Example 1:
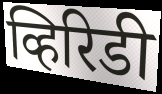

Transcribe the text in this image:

व्हिरिडी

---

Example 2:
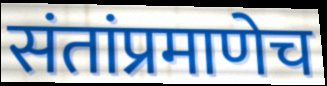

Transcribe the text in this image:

संतांप्रमाणेच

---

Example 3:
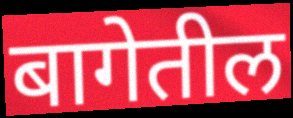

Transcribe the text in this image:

बागेतील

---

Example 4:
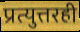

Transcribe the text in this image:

प्रत्युत्तरही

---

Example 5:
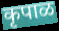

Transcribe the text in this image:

कृपाळ